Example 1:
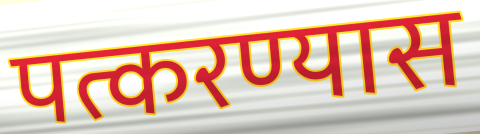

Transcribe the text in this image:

पत्करण्यास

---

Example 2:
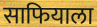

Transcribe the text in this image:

साफियाला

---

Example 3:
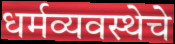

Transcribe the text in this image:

धर्मव्यवस्थेचे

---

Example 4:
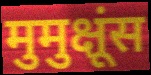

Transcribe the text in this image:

मुमुक्षूंस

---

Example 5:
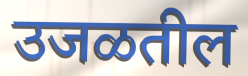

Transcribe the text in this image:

उजळतील